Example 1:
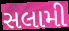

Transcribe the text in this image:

સલામી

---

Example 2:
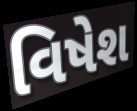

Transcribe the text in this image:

વિષેશ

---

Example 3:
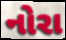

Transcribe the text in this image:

નોરા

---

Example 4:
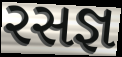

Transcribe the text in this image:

રસજ્ઞ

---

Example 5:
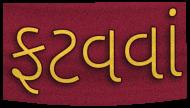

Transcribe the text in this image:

ફટવવાં